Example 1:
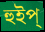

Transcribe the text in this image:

হুইপ্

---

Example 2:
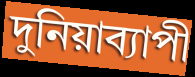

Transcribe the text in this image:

দুনিয়াব্যাপী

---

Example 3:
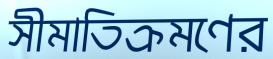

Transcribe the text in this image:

সীমাতিক্রমণের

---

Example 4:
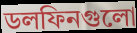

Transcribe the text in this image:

ডলফিনগুলো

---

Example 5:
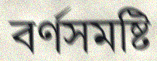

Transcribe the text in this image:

বর্ণসমষ্টি